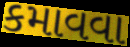
કમાવવા